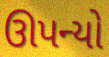
ઊપન્યો